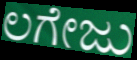
ಲಗೇಜು